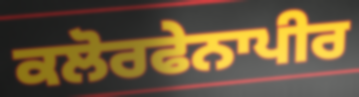
ਕਲੋਰਫੇਨਾਪੀਰ